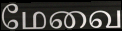
மேவை